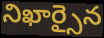
నిఖార్సైన